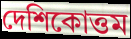
দেশিকোত্তম